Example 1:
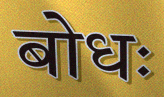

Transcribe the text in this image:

बोधः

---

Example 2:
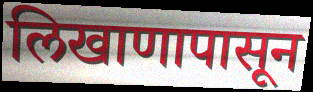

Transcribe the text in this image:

लिखाणापासून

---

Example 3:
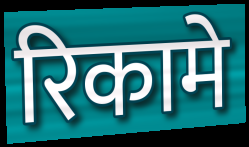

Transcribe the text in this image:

रिकामे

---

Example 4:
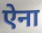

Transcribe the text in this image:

ऐना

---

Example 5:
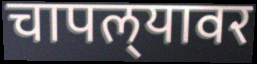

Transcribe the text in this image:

चापल्यावर